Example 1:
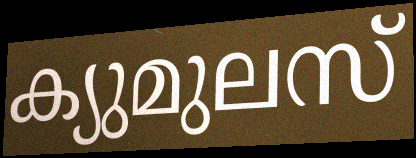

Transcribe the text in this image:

ക്യുമുലസ്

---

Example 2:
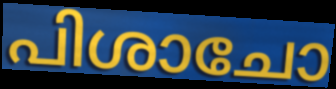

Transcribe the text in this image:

പിശാചോ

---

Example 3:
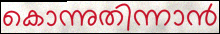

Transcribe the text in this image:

കൊന്നുതിന്നാൻ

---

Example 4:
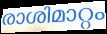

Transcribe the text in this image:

രാശിമാറ്റം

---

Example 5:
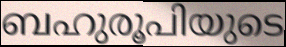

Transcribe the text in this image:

ബഹുരൂപിയുടെ